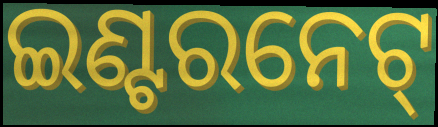
ଇଣ୍ଟରନେଟ୍